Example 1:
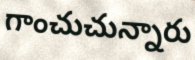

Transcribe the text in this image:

గాంచుచున్నారు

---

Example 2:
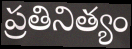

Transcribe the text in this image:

ప్రతినిత్యం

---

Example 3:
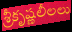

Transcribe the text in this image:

శ్రీకృష్ణలీలలు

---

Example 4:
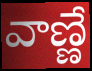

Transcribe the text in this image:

వాణ్ణే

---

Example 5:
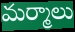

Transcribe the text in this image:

మర్మాలు